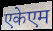
एकेएम